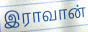
இராவான்